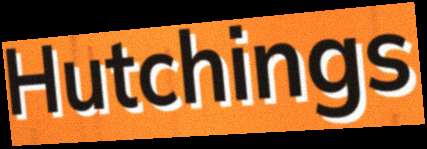
Hutchings